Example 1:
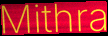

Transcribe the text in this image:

Mithra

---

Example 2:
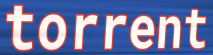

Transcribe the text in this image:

torrent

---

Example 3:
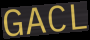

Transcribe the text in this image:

GACL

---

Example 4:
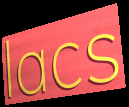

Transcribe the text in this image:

lacs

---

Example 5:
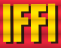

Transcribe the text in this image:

IFFI